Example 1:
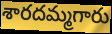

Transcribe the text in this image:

శారదమ్మగారు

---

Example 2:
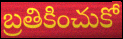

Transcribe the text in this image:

బ్రతికించుకో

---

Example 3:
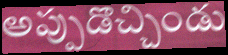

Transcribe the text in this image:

అప్పుడొచ్చిండు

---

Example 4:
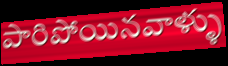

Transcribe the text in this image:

పారిపోయినవాళ్ళు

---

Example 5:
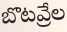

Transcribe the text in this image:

బొటవ్రేల